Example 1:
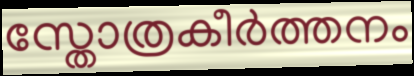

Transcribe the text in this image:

സ്തോത്രകീർത്തനം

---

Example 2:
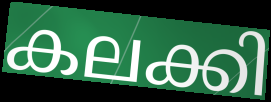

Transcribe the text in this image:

കലക്കി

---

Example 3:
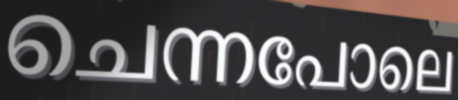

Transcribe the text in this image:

ചെന്നപോലെ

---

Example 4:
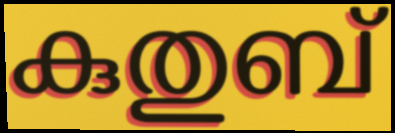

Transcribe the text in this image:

കുതുബ്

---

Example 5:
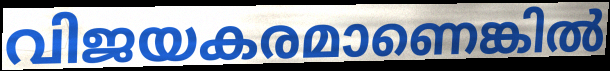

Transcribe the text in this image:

വിജയകരമാണെങ്കിൽ